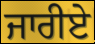
ਜਾਰੀਏ